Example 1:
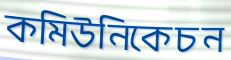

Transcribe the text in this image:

কমিউনিকেচন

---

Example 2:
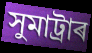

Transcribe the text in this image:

সুমাট্ৰাৰ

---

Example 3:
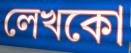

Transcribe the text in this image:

লেখকো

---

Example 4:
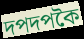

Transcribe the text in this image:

দপদপকৈ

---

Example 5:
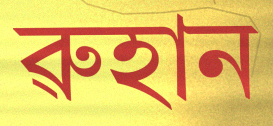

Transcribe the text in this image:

ৱুহান